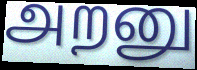
அறனு